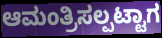
ಆಮಂತ್ರಿಸಲ್ಪಟ್ಟಾಗ